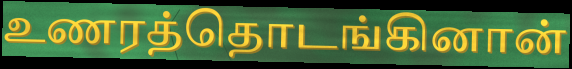
உணரத்தொடங்கினான்